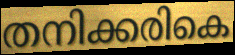
തനിക്കരികെ